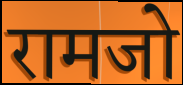
रामजो